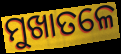
ମୁଖାତଳେ